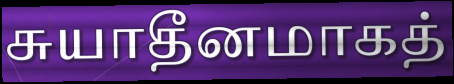
சுயாதீனமாகத்